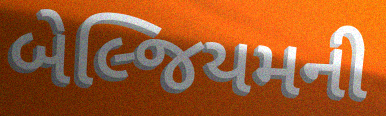
બેલ્જિયમની